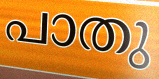
പാതു